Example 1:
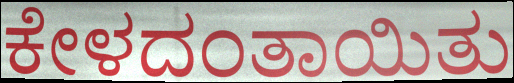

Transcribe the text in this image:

ಕೇಳದಂತಾಯಿತು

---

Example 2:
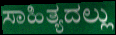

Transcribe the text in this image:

ಸಾಹಿತ್ಯದಲ್ಲು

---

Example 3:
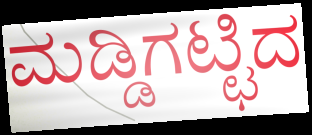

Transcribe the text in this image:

ಮಡ್ಡಿಗಟ್ಟಿದ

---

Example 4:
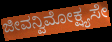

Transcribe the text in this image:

ಜೀವನ್ವಿಮೋಕ್ಷ್ಯಸೇ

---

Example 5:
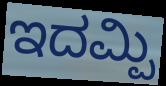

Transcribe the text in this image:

ಇದಮ್ಪಿ